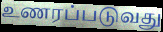
உணரப்படுவது